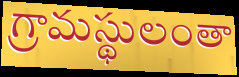
గ్రామస్థులంతా